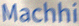
Machhi